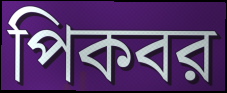
পিকবর